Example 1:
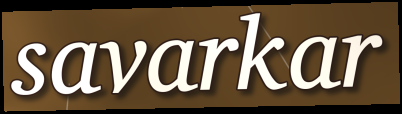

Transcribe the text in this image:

savarkar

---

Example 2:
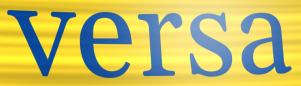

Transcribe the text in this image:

versa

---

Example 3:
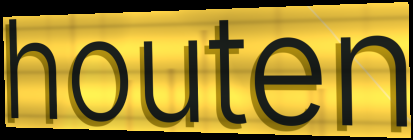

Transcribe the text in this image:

houten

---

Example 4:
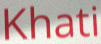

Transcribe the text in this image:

Khati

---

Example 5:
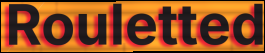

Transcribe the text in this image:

Rouletted